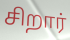
சிறார்